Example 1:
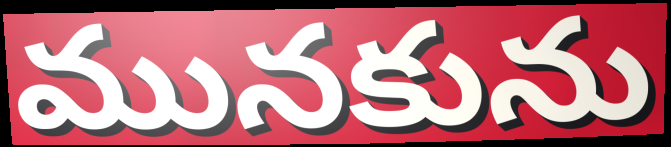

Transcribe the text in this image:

మునకును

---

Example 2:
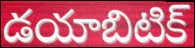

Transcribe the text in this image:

డయాబిటిక్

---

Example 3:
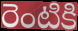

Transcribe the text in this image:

రెంటికి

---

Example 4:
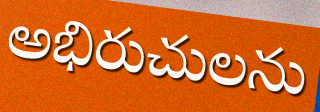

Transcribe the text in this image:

అభిరుచులను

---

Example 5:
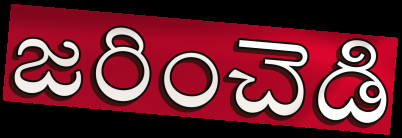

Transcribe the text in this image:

జరించెడి